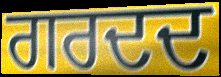
ਗਰਦਦ